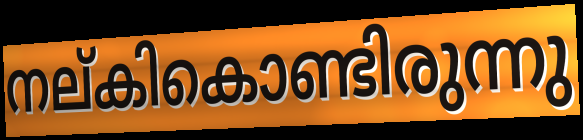
നല്കികൊണ്ടിരുന്നു